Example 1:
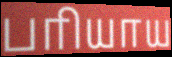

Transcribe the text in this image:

பரியாய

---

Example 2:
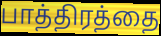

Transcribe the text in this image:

பாத்திரத்தை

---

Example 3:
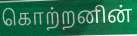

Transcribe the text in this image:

கொற்றனின்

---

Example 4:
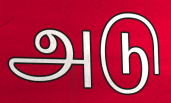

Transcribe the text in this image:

அடு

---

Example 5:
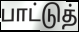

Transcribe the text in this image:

பாட்டுத்